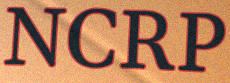
NCRP